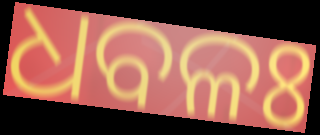
ଧବଳଃ